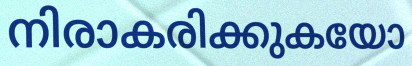
നിരാകരിക്കുകയോ